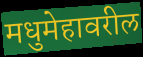
मधुमेहावरील